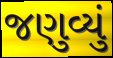
જણુવ્યું